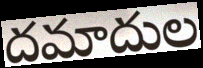
దమాదుల